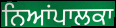
ਨਿਆਂਪਾਲਕਾ